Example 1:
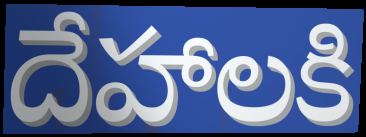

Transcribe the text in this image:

దేహాలకి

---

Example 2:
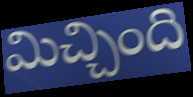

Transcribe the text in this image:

మిచ్చింది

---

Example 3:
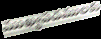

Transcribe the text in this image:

ముఖ్యపదములకు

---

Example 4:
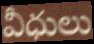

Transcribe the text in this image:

వీధులు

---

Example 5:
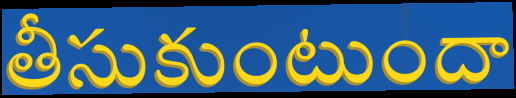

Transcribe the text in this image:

తీసుకుంటుందా